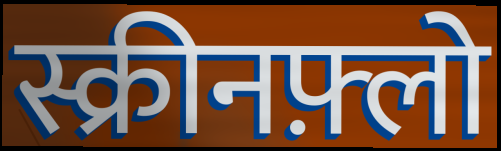
स्क्रीनफ़्लो